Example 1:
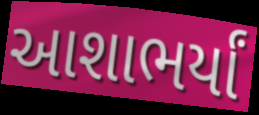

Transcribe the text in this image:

આશાભર્યાં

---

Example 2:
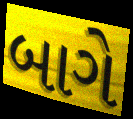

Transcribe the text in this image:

બાગે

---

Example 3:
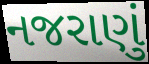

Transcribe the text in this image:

નજરાણું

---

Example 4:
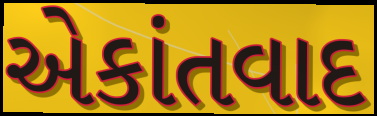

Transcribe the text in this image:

એકાંતવાદ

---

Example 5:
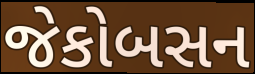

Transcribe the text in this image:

જેકોબસન